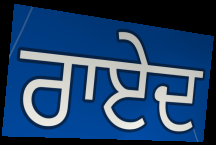
ਰਾਏਦ